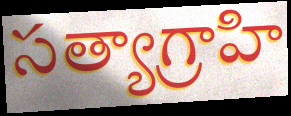
సత్యాగ్రాహి